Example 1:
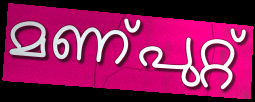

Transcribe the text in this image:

മണ്പുറ്റ്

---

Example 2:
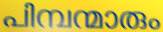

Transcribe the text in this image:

പിമ്പന്മാരും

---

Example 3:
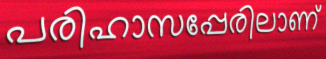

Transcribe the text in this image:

പരിഹാസപ്പേരിലാണ്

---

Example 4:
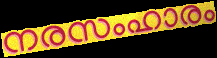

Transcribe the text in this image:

നരസംഹാരം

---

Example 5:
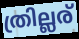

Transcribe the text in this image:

ത്രില്ലര്